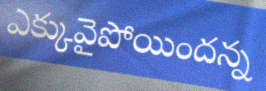
ఎక్కువైపోయిందన్న